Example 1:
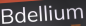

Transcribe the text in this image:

Bdellium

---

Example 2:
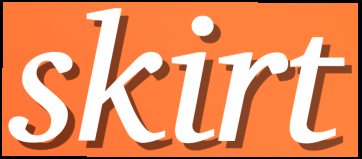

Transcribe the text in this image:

skirt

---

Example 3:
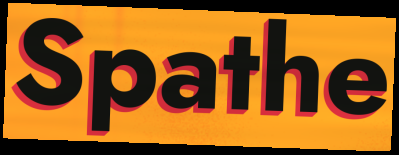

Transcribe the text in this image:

Spathe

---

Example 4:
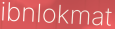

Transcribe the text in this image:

ibnlokmat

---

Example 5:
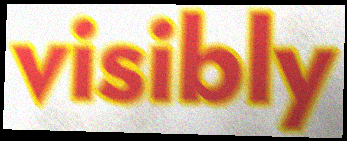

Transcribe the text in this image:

visibly